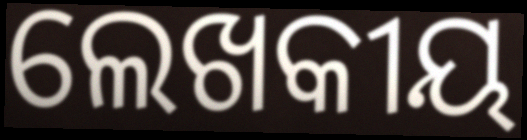
ଲେଖକୀୟ